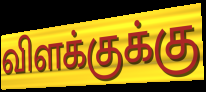
விளக்குக்கு